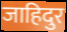
जाहिदुर